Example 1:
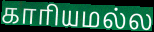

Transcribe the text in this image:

காரியமல்ல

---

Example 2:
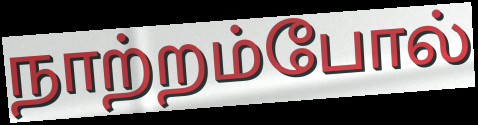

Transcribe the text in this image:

நாற்றம்போல்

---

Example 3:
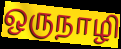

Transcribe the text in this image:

ஒருநாழி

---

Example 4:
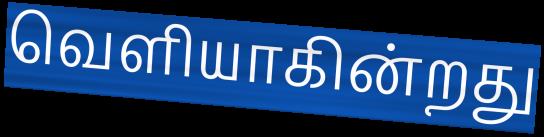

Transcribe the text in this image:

வெளியாகின்றது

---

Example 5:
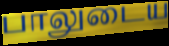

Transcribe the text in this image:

பாலுடைய